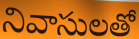
నివాసులతో